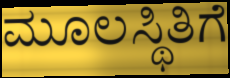
ಮೂಲಸ್ಥಿತಿಗೆ